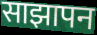
साझापन